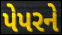
પેપરને